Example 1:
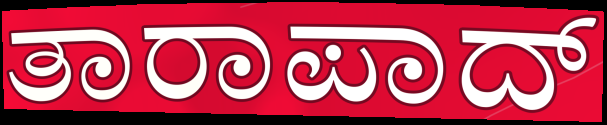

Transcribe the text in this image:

ತಾರಾಪಾದ್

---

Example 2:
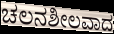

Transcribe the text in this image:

ಚಲನಶೀಲವಾದ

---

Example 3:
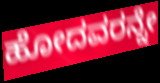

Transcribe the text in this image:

ಹೋದವರನ್ನೇ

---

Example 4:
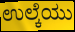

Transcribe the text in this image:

ಉಲ್ಕೆಯು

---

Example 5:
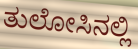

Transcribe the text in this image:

ತುಲೋಸಿನಲ್ಲಿ